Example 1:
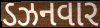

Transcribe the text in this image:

ડઝનવાર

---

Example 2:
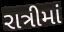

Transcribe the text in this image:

રાત્રીમાં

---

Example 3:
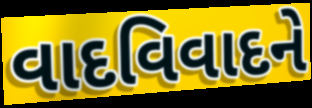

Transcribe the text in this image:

વાદવિવાદને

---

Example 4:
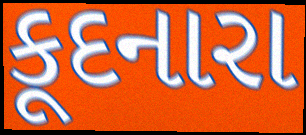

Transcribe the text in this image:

કૂદનારા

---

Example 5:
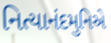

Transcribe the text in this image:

નિત્યાનંદમુનિએ